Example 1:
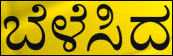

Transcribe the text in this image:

ಬೆಳೆಸಿದ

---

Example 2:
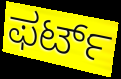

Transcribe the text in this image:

ಫರ್ಟ್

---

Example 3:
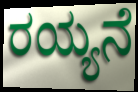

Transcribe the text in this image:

ರಯ್ಯನೆ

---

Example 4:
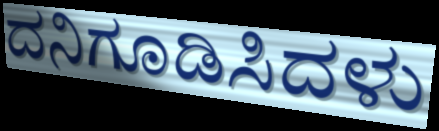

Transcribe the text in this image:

ದನಿಗೂಡಿಸಿದಳು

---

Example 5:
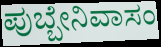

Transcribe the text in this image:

ಪುಬ್ಬೇನಿವಾಸಂ